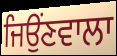
ਜਿਉਂਣਵਾਲਾ